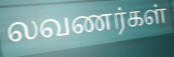
லவணர்கள்